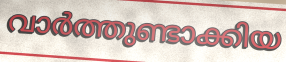
വാർത്തുണ്ടാക്കിയ